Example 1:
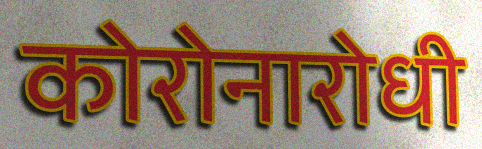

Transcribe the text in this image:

कोरोनारोधी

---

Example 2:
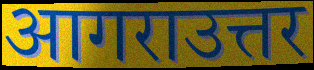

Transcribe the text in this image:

आगराउत्तर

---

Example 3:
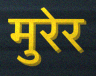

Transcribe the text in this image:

मुरेर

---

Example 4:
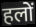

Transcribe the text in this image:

हलों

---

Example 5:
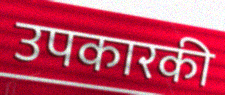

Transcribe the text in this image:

उपकारकी